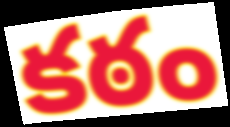
కఠం